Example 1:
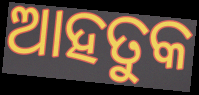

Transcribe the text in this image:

ଆହତୁକ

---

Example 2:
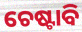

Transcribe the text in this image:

ଚେଷ୍ଟାବି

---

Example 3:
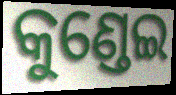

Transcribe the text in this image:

କୁଣ୍ଡେଇ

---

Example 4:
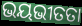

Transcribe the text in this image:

ଭୟଭୀତତା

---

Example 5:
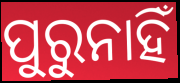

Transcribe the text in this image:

ପୁରୁନାହିଁ